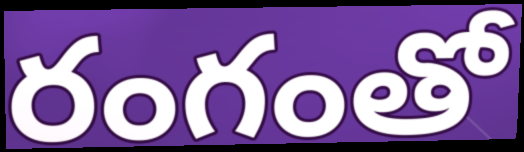
రంగంతో